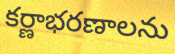
కర్ణాభరణాలను